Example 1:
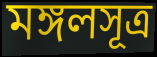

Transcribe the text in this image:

মঙ্গলসূত্র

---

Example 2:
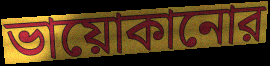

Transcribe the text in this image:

ভায়োকানোর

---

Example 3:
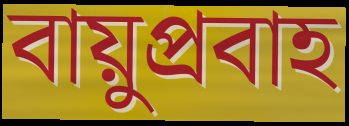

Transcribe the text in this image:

বায়ুপ্রবাহ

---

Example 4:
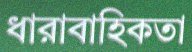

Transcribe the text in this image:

ধারাবাহিকতা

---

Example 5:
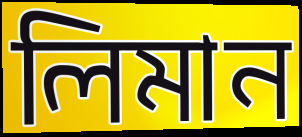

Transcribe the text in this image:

লিমান